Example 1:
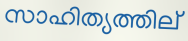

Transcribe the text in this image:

സാഹിത്യത്തില്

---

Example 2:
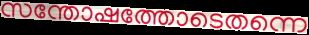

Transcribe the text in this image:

സന്തോഷത്തോടെതന്നെ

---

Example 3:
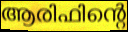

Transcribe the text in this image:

ആരിഫിന്റെ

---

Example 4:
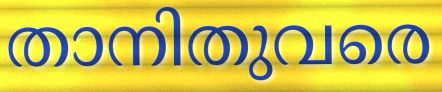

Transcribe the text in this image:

താനിതുവരെ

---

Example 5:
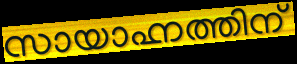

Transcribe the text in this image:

സായാഹ്നത്തിന്